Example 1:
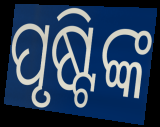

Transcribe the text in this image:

ପୃଷ୍ଟିଙ୍କ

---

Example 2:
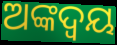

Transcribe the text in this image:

ଅଙ୍କଦ୍ବୟ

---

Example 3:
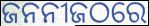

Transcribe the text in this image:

ଜନନୀଜଠରେ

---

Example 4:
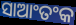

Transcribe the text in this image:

ସାଆଂତଂକ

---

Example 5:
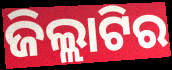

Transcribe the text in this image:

ଜିଲ୍ଲାଟିର